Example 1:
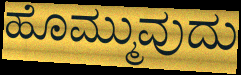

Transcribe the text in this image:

ಹೊಮ್ಮುವುದು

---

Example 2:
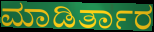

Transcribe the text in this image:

ಮಾಡಿರ್ತಾರ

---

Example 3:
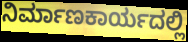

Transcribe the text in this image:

ನಿರ್ಮಾಣಕಾರ್ಯದಲ್ಲಿ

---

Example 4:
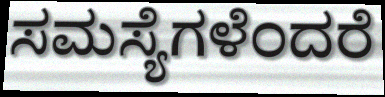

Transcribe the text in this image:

ಸಮಸ್ಯೆಗಳೆಂದರೆ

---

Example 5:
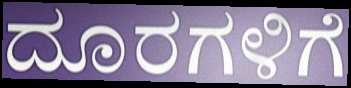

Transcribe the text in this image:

ದೂರಗಳಿಗೆ